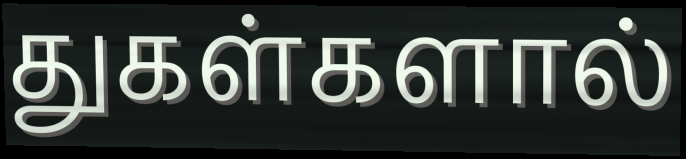
துகள்களால்